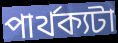
পার্থক্যটা